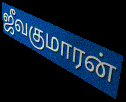
ஜீவகுமாரன்